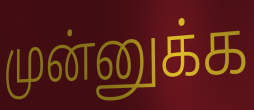
முன்னுக்க